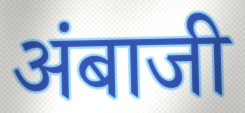
अंबाजी